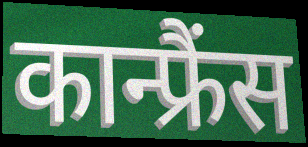
कान्फ्रैंस